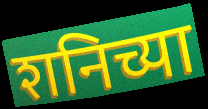
शनिच्या